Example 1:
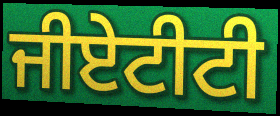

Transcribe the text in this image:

ਜੀਏਟੀਟੀ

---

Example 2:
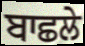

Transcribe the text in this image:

ਬਾਛਲੇ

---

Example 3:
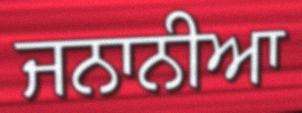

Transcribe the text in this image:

ਜਨਾਨੀਆ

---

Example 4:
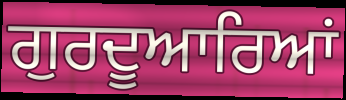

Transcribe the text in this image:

ਗੁਰਦੂਆਰਿਆਂ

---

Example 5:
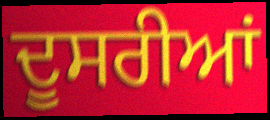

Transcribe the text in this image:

ਦੂਸਰੀਆਂ